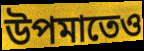
উপমাতেও